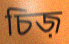
চিজ়